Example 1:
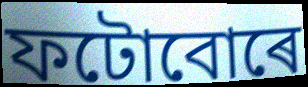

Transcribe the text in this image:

ফটোবোৰে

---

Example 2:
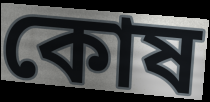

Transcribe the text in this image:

কোষ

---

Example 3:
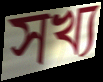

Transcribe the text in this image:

সখ্য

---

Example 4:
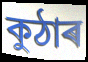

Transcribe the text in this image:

কুঠাৰ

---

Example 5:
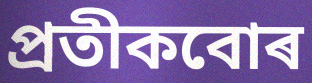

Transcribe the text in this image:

প্ৰতীকবোৰ